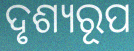
ଦୃଶ୍ୟରୂପ